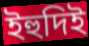
ইহুদিই